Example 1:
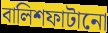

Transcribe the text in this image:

বালিশফাটানো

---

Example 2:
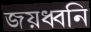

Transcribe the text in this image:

জয়ধ্বনি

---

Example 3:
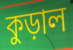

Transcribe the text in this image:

কুড়াল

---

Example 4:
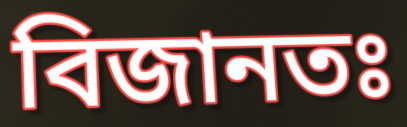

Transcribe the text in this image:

বিজানতঃ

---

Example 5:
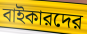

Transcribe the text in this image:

বাইকারদের